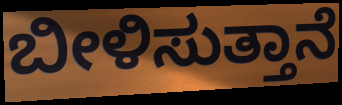
ಬೀಳಿಸುತ್ತಾನೆ